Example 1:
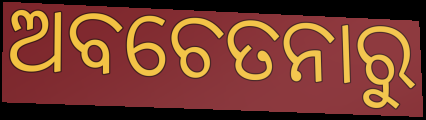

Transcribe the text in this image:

ଅବଚେତନାରୁ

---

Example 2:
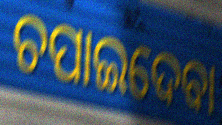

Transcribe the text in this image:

ଚପାଇଦେବା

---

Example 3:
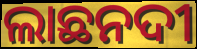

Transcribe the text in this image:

ଲାଛନଦୀ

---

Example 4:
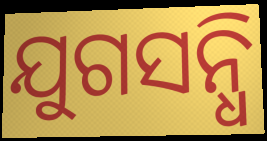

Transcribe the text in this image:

ଯୁଗସନ୍ଧି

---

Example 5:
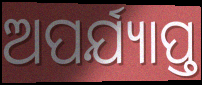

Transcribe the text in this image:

ଅପର୍ଯ୍ୟାପ୍ତ